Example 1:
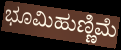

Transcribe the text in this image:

ಭೂಮಿಹುಣ್ಣಿಮೆ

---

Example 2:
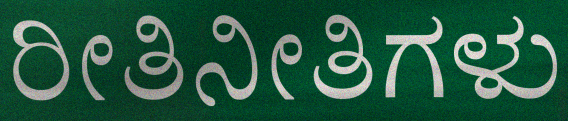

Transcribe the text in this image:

ರೀತಿನೀತಿಗಳು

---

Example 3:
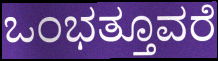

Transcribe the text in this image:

ಒಂಭತ್ತೂವರೆ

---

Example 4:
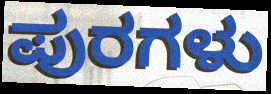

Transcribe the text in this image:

ಪುರಗಳು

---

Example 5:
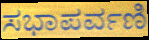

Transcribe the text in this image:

ಸಭಾಪರ್ವಣಿ